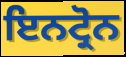
ਇਨਟ੍ਰੋਨ